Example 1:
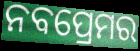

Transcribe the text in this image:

ନବପ୍ରେମର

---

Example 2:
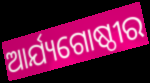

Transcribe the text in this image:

ଆର୍ଯ୍ୟଗୋଷ୍ଠୀର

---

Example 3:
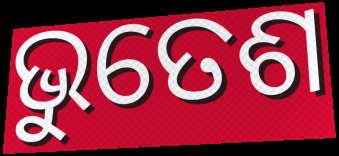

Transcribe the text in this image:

ଭୁତେଶ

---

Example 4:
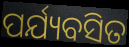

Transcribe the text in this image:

ପର୍ଯ୍ୟବସିତ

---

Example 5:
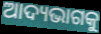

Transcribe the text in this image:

ଆଦ୍ୟଭାଗକୁ